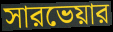
সারভেয়ার